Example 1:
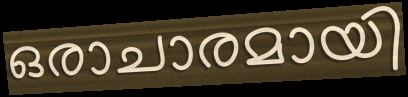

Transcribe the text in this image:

ഒരാചാരമായി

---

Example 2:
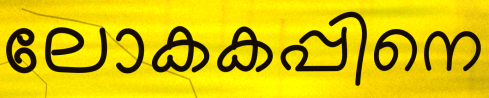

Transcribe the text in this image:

ലോകകപ്പിനെ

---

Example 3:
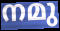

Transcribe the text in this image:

നമു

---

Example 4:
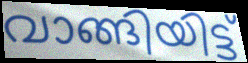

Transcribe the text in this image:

വാങ്ങിയിട്ട്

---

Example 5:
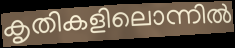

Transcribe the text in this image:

കൃതികളിലൊന്നിൽ